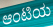
ಆಂಟಿಯ